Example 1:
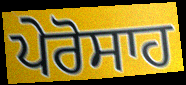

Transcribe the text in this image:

ਪੇਰੋਸਾਹ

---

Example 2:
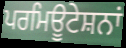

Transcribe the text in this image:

ਪਰਮਿਊਟੇਸ਼ਨਾਂ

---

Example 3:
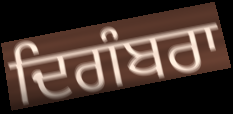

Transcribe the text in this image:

ਦਿਗੰਬਰਾ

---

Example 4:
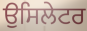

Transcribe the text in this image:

ਉਸਿਲੇਟਰ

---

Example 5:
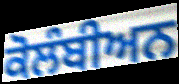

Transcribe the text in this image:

ਕੋਲੰਬੀਅਨ